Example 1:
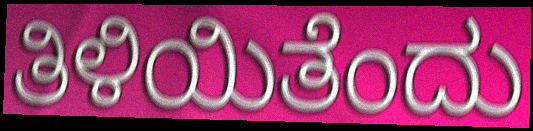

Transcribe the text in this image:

ತಿಳಿಯಿತೆಂದು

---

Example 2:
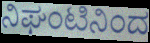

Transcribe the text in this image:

ನಿಘಂಟಿನಿಂದ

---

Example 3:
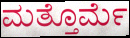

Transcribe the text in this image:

ಮತ್ತೊರ್ಮೆ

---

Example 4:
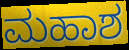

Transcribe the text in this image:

ಮಹಾಶ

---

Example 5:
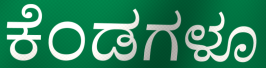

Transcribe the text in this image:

ಕೆಂಡಗಳೂ